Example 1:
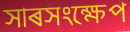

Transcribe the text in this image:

সাৰসংক্ষেপ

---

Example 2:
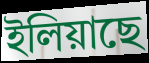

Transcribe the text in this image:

ইলিয়াছে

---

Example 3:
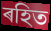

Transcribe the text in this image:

ৰহিত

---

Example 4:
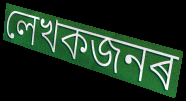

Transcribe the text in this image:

লেখকজনৰ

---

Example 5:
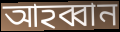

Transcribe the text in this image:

আহব্বান